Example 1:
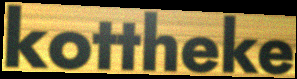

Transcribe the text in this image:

kottheke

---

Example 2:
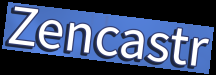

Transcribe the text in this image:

Zencastr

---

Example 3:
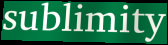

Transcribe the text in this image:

sublimity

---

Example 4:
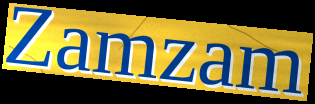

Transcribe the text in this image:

Zamzam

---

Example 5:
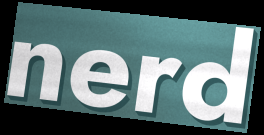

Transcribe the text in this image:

nerd